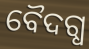
ବୈଦଗ୍ଧ